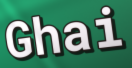
Ghai